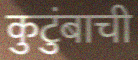
कुटुंबाची